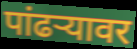
पांढर्‍यावर